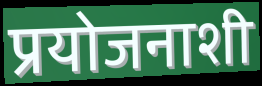
प्रयोजनाशी